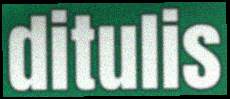
ditulis